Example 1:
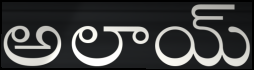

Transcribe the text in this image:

అలాయ్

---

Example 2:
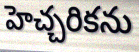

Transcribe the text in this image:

హెచ్చరికను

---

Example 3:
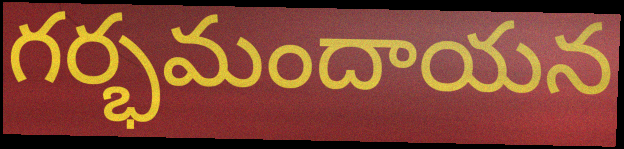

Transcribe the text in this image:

గర్భమందాయన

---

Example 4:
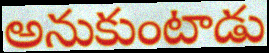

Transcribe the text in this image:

అనుకుంటాడు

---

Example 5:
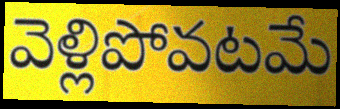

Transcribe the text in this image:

వెళ్లిపోవటమే